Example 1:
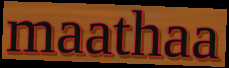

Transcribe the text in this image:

maathaa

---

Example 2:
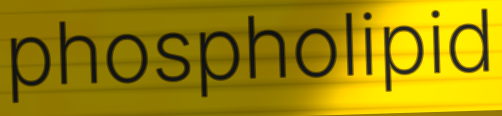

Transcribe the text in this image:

phospholipid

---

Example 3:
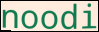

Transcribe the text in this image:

noodi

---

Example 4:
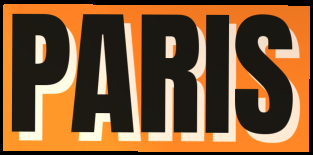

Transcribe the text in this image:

PARIS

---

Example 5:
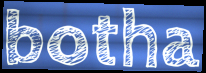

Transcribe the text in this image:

botha